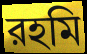
রহমি